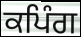
ਕਪਿੰਗ